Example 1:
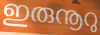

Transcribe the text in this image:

ഇരുനൂറു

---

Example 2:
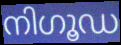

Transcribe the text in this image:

നിഗൂഡ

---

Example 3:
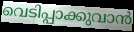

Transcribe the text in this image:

വെടിപ്പാക്കുവാൻ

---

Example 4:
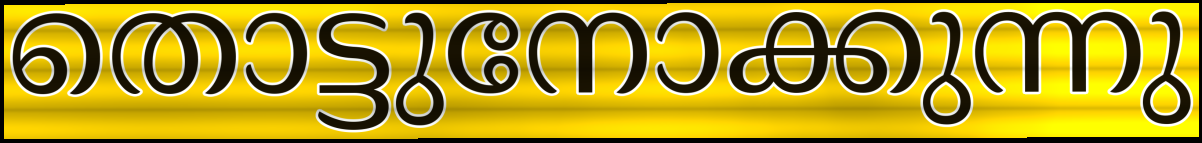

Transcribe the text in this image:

തൊട്ടുനോക്കുന്നു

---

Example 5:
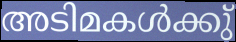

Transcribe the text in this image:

അടിമകൾക്കു്